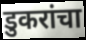
डुकरांचा